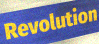
Revolution